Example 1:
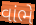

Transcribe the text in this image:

વાંભે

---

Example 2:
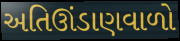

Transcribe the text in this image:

અતિઊંડાણવાળો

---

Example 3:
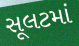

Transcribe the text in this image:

સૂલટમાં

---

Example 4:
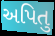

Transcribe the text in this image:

અપિતુ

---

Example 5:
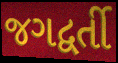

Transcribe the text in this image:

જગદ્વર્તી